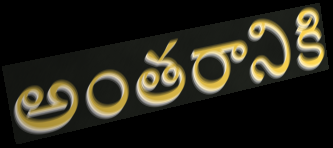
అంతరానికి